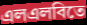
এলএলবিতে